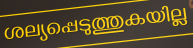
ശല്യപ്പെടുത്തുകയില്ല